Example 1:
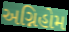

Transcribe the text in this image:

અગ્નિહોમ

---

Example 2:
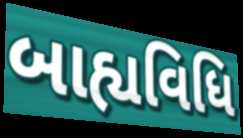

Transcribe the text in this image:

બાહ્યવિધિ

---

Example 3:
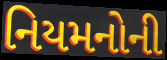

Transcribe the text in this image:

નિયમનોની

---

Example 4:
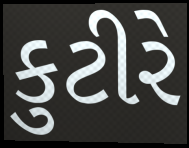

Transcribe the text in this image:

કુટીરે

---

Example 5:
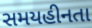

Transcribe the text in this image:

સમયહીનતા